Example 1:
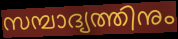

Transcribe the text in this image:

സമ്പാദ്യത്തിനും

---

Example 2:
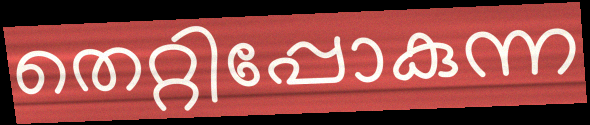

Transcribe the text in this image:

തെറ്റിപ്പോകുന്ന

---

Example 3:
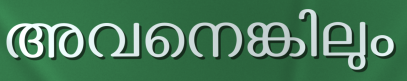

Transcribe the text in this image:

അവനെങ്കിലും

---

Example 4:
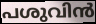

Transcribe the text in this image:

പശുവിൻ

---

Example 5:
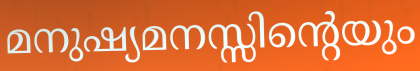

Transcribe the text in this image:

മനുഷ്യമനസ്സിന്റെയും